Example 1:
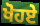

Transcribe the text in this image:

ਖੋਹਏ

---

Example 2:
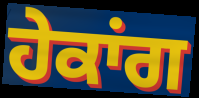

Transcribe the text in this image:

ਹੇਕਾਂਗ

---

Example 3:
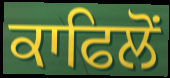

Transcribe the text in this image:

ਕਾਫਿਲੋਂ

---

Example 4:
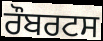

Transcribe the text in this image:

ਰੌਬਰਟਸ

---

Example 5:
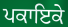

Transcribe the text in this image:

ਪਕਾਇਕੇ